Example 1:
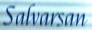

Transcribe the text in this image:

Salvarsan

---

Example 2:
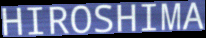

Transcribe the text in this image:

HIROSHIMA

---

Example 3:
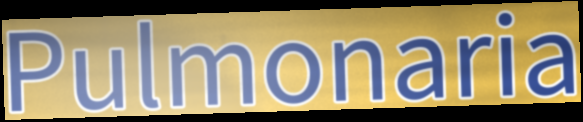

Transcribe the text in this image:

Pulmonaria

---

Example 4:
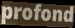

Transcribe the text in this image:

profond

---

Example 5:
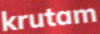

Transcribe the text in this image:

krutam